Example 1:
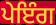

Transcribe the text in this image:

ਪੇਇੰਗ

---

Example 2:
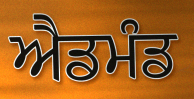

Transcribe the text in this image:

ਐਡਮੰਡ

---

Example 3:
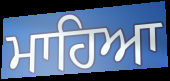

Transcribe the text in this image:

ਮਾਹਿਆ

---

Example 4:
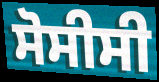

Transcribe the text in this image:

ਸੋਸੀਸੀ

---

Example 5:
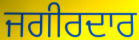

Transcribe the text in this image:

ਜਗੀਰਦਾਰ